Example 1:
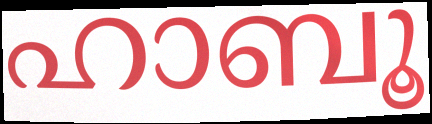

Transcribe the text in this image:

ഹാബൂ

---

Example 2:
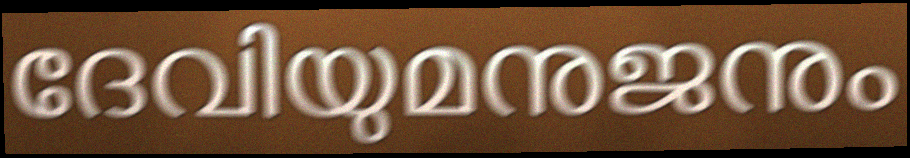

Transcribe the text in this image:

ദേവിയുമനുജനും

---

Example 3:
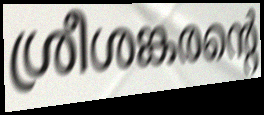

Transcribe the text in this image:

ശ്രീശങ്കരന്റെ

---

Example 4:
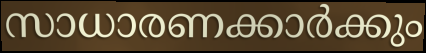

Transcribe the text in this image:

സാധാരണക്കാർക്കും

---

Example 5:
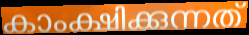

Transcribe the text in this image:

കാംക്ഷിക്കുന്നത്